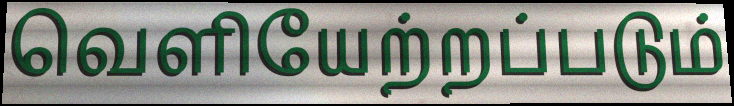
வெளியேற்றப்படும்